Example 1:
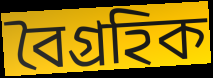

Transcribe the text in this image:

বৈগ্রহিক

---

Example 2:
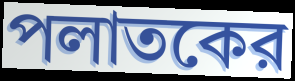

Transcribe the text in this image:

পলাতকের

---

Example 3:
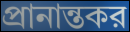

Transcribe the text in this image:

প্রানান্তকর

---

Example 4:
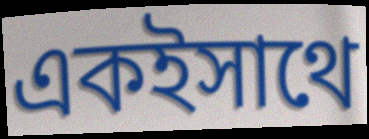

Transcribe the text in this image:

একইসাথে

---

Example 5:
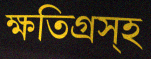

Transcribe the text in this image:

ক্ষতিগ্রস্হ